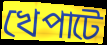
খেপাটে